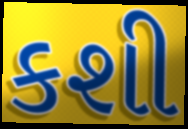
કશી